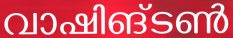
വാഷിങ്ടൺ